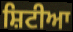
ਸ਼ਿਟੀਆ